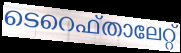
ടെറെഫ്താലേറ്റ്